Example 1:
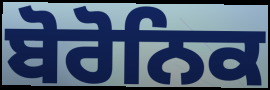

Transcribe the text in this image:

ਬੋਰੋਨਿਕ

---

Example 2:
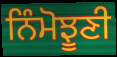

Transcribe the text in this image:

ਨਿੰਮੋਝੂਣੀ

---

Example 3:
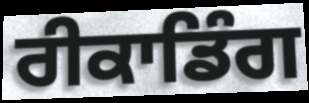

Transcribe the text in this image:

ਰੀਕਾਡਿੰਗ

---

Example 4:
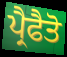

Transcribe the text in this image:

ਪ੍ਰੈਫੈਤੋ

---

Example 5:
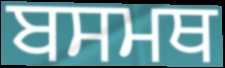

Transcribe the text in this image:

ਬਸਮਥ